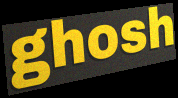
ghosh